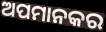
ଅପମାନକର